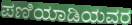
ಪಣಿಯಾಡಿಯವರ